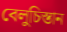
বেলুচিস্তান